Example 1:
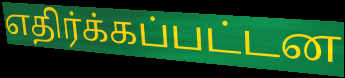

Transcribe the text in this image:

எதிர்க்கப்பட்டன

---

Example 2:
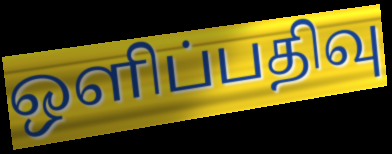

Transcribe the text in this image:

ஒளிப்பதிவு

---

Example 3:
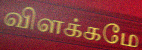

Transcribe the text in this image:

விளக்கமே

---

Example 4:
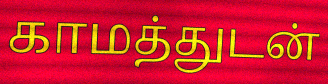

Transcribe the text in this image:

காமத்துடன்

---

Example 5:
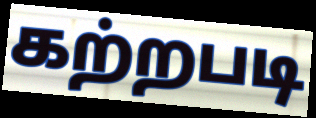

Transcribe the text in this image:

கற்றபடி